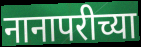
नानापरीच्या